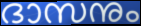
ദാസനും